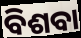
ବିଶବା